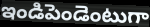
ఇండిపెండెంటుగా